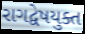
રાગદ્વેષયુક્ત